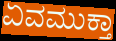
ಏವಮುಕ್ತಾ